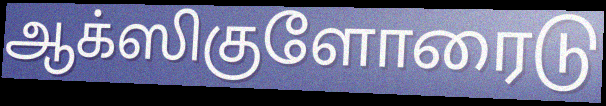
ஆக்ஸிகுளோரைடு